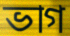
ভাগ